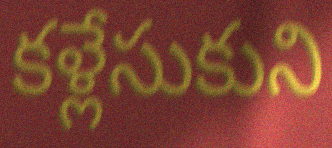
కళ్లేసుకుని